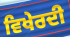
ਵਿਖੇਰਦੀ